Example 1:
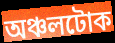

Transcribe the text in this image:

অঞ্চলটোক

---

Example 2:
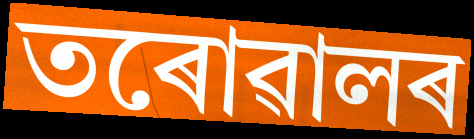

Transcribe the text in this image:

তৰোৱালৰ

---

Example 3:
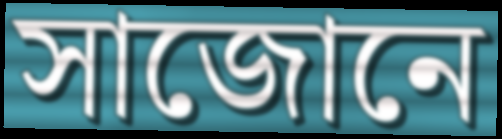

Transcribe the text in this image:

সাজোনে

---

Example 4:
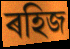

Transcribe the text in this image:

ৰহিজ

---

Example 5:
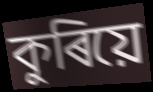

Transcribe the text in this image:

কুৰিয়ে